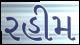
રહીમ